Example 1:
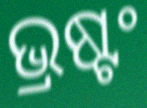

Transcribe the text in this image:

ଭ୍ରଷ୍ଟଂ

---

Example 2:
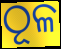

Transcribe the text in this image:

ଠୂଳ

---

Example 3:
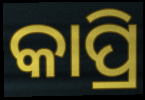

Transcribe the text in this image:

କାପ୍ରି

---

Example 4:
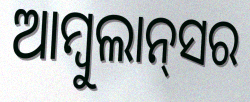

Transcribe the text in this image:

ଆମ୍ବୁଲାନ୍‌ସର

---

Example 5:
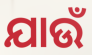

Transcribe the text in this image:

ଯାଉଁ